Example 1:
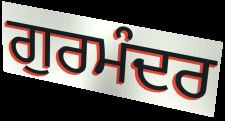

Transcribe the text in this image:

ਗੁਰਮੰਦਰ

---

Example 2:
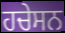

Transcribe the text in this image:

ਹਚੇਸਨ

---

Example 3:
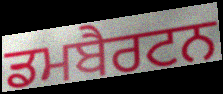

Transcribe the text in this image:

ਡਮਬੈਰਟਨ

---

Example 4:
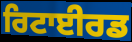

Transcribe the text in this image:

ਰਿਟਾਈਰਡ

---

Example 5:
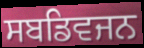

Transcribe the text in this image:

ਸਬਡਿਵਜਨ